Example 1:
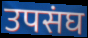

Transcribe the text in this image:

उपसंघ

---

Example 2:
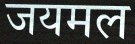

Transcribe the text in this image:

जयमल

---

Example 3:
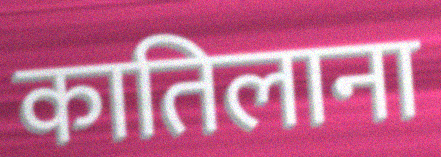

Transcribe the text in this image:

कातिलाना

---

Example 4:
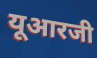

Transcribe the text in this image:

यूआरजी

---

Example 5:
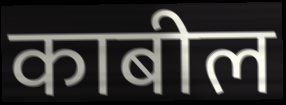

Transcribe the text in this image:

काबील